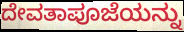
ದೇವತಾಪೂಜೆಯನ್ನು